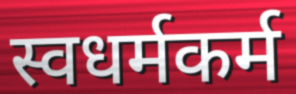
स्वधर्मकर्म